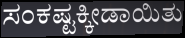
ಸಂಕಷ್ಟಕ್ಕೀಡಾಯಿತು